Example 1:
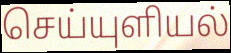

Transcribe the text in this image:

செய்யுளியல்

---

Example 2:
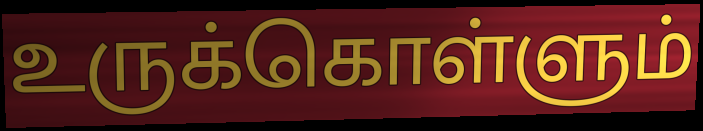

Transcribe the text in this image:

உருக்கொள்ளும்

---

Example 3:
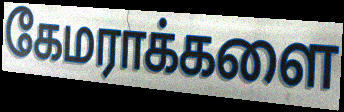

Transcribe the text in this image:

கேமராக்களை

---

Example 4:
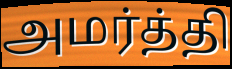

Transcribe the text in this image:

அமர்த்தி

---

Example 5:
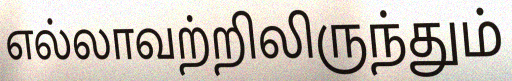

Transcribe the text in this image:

எல்லாவற்றிலிருந்தும்